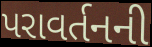
પરાવર્તનની